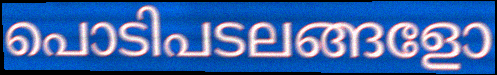
പൊടിപടലങ്ങളോ